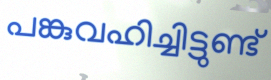
പങ്കുവഹിച്ചിട്ടുണ്ട്